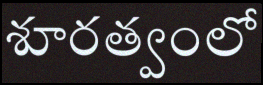
శూరత్వంలో